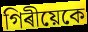
গিৰীয়েকে